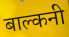
बाल्कनी